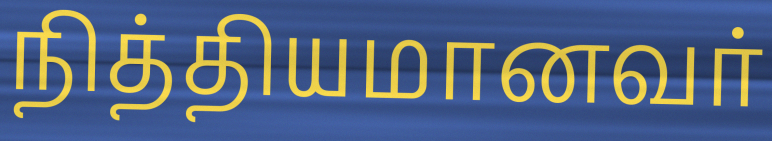
நித்தியமானவர்